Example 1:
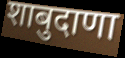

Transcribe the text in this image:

शाबुदाणा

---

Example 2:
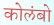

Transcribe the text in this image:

कोलंबो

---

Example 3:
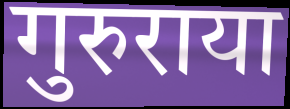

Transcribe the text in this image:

गुरुराया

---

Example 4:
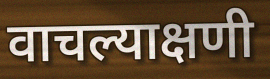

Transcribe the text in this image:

वाचल्याक्षणी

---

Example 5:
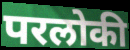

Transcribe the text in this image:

परलोकी